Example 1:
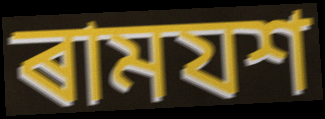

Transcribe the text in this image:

ৰামযশ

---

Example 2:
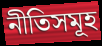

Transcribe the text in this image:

নীতিসমূহ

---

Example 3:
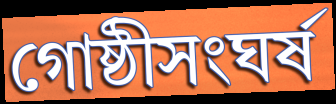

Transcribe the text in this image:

গোষ্ঠীসংঘৰ্ষ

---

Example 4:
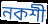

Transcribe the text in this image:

নকশী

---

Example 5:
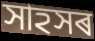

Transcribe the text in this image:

সাহসৰ